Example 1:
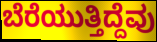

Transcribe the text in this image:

ಬೆರೆಯುತ್ತಿದ್ದೆವು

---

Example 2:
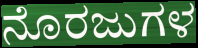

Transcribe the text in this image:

ನೊರಜುಗಳ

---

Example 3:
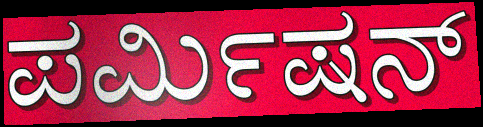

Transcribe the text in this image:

ಪರ್ಮಿಷನ್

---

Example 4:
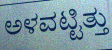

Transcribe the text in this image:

ಅಳವಟ್ಟಿತ್ತು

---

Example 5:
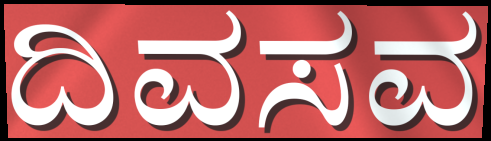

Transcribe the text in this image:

ದಿವಸವ